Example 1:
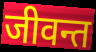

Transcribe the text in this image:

जीवन्त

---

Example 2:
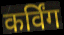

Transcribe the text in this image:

कर्विंग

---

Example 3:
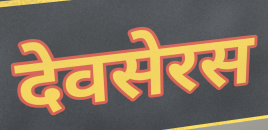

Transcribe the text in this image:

देवसेरस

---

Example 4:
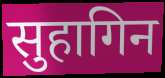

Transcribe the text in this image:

सुहागिन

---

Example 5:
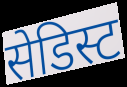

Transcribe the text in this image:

सेडिस्ट